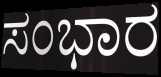
ಸಂಭಾರ